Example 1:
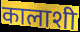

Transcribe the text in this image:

कालाशी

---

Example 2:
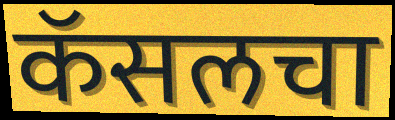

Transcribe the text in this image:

कॅसलचा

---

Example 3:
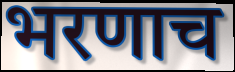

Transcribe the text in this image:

भरणाच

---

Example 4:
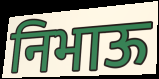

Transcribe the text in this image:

निभाऊ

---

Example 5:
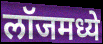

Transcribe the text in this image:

लॉजमध्ये